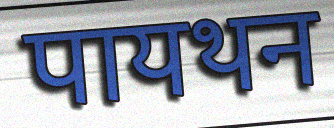
पायथन